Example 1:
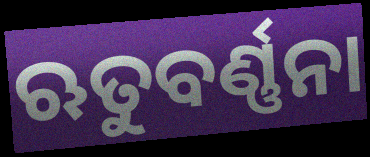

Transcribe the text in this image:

ଋତୁବର୍ଣ୍ଣନା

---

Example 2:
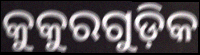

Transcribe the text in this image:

କୁକୁରଗୁଡ଼ିକ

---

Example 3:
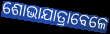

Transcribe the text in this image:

ଶୋଭାଯାତ୍ରାବେଳେ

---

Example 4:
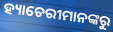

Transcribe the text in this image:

ହ୍ୟାଚେରୀମାନଙ୍କରୁ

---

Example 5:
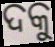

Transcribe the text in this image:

ଦକୁ